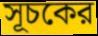
সূচকের